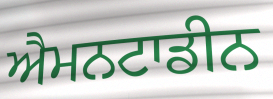
ਐਮਨਟਾਡੀਨ